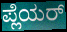
ಪ್ಲೆಯರ್